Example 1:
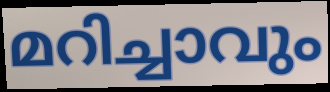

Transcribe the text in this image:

മറിച്ചാവും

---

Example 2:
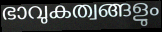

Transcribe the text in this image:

ഭാവുകത്വങ്ങളും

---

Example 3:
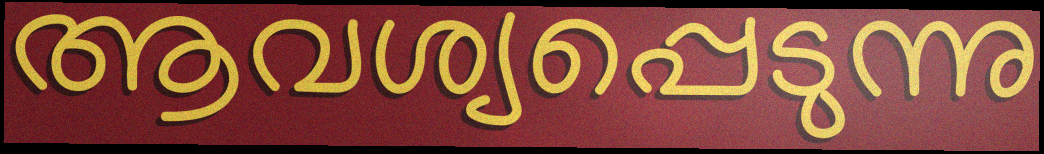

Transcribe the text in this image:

ആവശ്യപ്പെടുന്നു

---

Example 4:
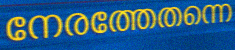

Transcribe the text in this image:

നേരത്തേതന്നെ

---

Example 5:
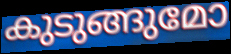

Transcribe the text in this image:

കുടുങ്ങുമോ